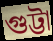
গুট্টা